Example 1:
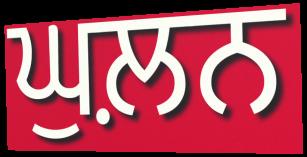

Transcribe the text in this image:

ਘੁਲ਼ਨ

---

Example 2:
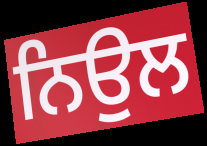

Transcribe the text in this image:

ਨਿਉਲ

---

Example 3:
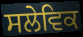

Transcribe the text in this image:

ਸਲੇਵਿਕ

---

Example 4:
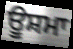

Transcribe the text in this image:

ਊਸ਼ਮਾ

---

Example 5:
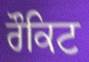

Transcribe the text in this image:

ਰੌਕਿਟ